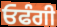
ਓਫੰਗੀ